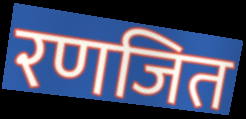
रणजित